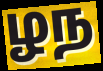
ழந